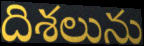
దిశలును